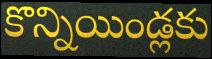
కొన్నియిండ్లకు